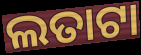
ଲତାଟା